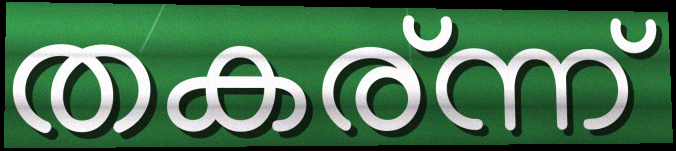
തകര്ന്ന്